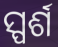
ସ୍ପର୍ଶ